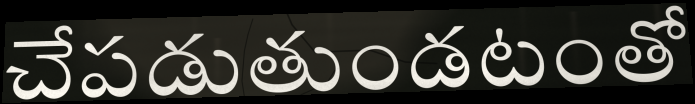
చేపడుతుండటంతో